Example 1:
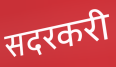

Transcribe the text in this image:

सदरकरी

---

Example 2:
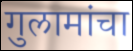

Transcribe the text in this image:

गुलामांचा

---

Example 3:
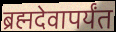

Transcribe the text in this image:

ब्रह्मदेवापर्यंत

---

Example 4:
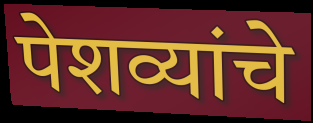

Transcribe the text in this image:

पेशव्यांचे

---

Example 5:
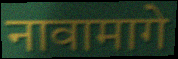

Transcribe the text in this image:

नावामागे